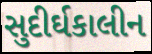
સુદીર્ઘકાલીન